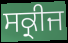
ਸਕ੍ਰੀਜ